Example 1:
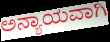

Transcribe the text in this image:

ಅನ್ಯಾಯವಾಗಿ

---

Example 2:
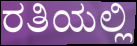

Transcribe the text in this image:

ರತಿಯಲ್ಲಿ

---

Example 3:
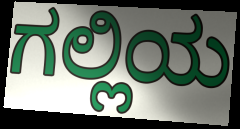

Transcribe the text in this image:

ಗಲ್ಲಿಯ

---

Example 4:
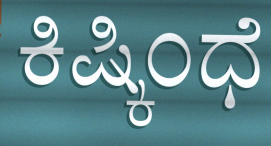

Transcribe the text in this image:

ಕಿಷ್ಕಿಂಧೆ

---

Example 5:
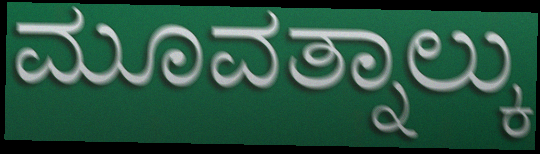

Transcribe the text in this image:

ಮೂವತ್ನಾಲ್ಕು